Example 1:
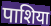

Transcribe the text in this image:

पाशिया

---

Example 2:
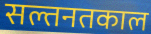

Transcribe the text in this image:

सल्तनतकाल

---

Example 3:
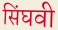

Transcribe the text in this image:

सिंघवी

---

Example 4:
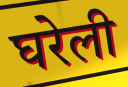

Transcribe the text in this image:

घरेली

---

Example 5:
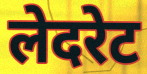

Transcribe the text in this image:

लेदरेट